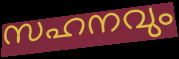
സഹനവും